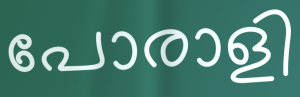
പോരാളി